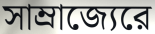
সাম্রাজ্যেরে